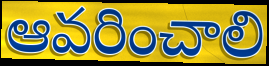
ఆవరించాలి